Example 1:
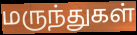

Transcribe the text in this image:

மருந்துகள்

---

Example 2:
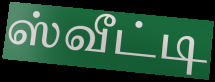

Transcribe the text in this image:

ஸ்வீட்டி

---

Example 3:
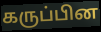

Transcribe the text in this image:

கருப்பின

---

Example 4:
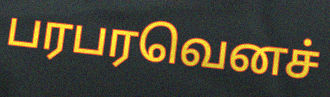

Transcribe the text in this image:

பரபரவெனச்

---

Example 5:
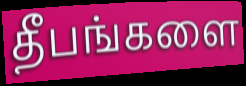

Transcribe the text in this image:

தீபங்களை